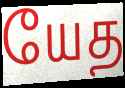
யேத